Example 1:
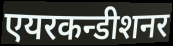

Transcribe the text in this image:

एयरकन्डीशनर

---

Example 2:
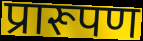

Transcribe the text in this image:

प्रारूपण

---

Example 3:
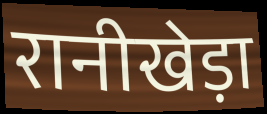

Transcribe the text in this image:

रानीखेड़ा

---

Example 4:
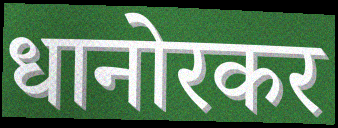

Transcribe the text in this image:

धानोरकर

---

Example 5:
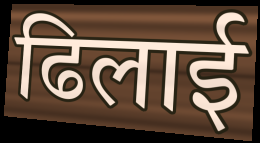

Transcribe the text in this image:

ढिलाई